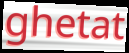
ghetat